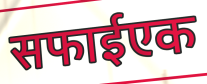
सफाईएक